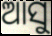
ଆସୁ